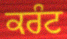
ਕਰੰਟ